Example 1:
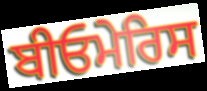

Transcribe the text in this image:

ਬੀਓਮੇਰਿਸ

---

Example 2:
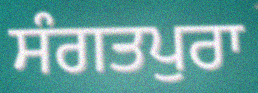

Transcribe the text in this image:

ਸੰਗਤਪੁਰਾ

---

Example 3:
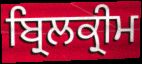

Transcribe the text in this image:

ਬ੍ਰਿਲਕ੍ਰੀਮ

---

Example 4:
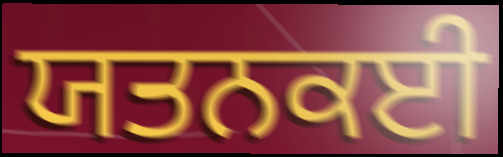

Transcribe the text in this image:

ਯਤਨਕਈ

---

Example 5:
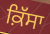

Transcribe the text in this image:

ਕ਼ਿੱਸਾ